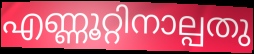
എണ്ണൂറ്റിനാല്പതു